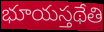
భూయస్తథేతి